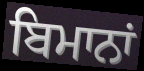
ਬਿਮਾਨਾਂ